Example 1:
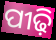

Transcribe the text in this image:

ପୀଢ଼ି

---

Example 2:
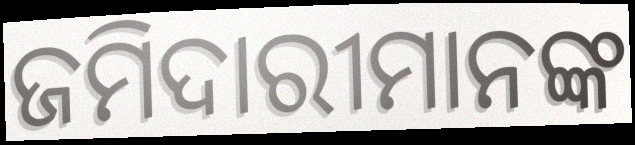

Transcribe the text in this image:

ଜମିଦାରୀମାନଙ୍କ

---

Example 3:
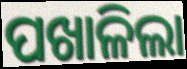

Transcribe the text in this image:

ପଖାଳିଲା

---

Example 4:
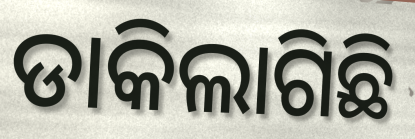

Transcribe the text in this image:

ଡାକିଲାଗିଛି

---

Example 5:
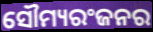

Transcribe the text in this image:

ସୌମ୍ୟରଂଜନର